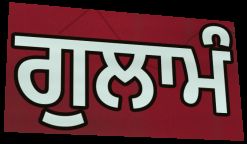
ਗੁਲਾਮੰ